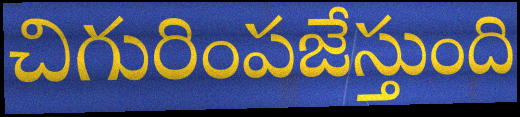
చిగురింపజేస్తుంది